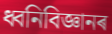
ধ্বনিবিজ্ঞানৰ